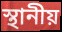
স্থানীয়